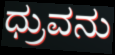
ಧ್ರುವನು